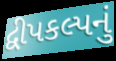
દ્વીપકલ્પનું